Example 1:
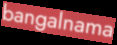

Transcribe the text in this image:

bangalnama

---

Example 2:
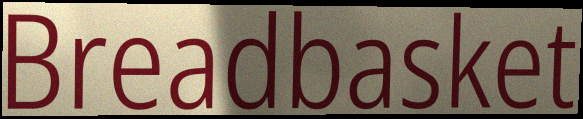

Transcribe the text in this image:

Breadbasket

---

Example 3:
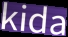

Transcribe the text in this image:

kida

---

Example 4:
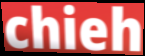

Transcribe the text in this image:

chieh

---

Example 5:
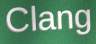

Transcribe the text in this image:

Clang